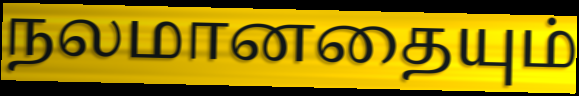
நலமானதையும்